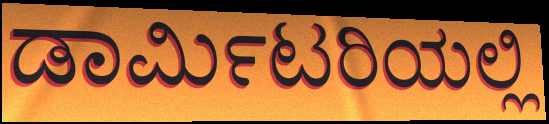
ಡಾರ್ಮಿಟರಿಯಲ್ಲಿ